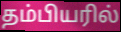
தம்பியரில்